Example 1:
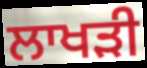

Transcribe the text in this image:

ਲਾਖੜੀ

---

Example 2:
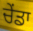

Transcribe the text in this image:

ਚੇਂਡਾ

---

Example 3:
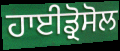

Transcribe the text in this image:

ਹਾਈਡ੍ਰੋਸੋਲ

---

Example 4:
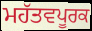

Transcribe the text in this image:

ਮਹੱਤਵਪੂਰਕ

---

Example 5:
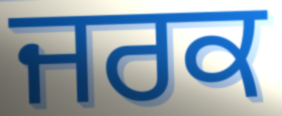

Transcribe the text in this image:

ਜਰਕ